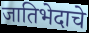
जातिभेदाचे